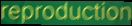
reproduction